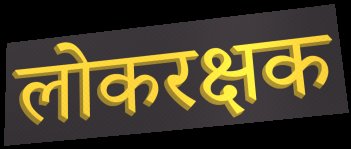
लोकरक्षक